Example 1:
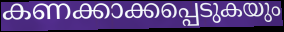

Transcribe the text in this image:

കണക്കാക്കപ്പെടുകയും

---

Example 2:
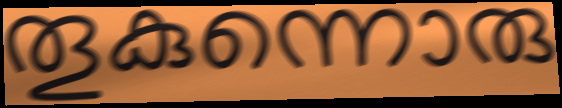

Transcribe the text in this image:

തൂകുന്നൊരു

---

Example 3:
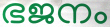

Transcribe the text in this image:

ഭജനം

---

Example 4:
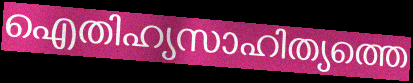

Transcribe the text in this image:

ഐതിഹ്യസാഹിത്യത്തെ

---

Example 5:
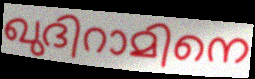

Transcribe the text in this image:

ഖുദിറാമിനെ